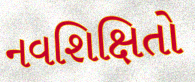
નવશિક્ષિતો